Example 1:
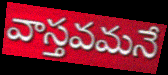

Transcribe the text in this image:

వాస్తవమనే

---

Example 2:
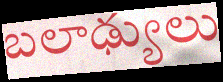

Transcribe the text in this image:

బలాఢ్యులు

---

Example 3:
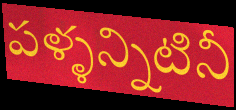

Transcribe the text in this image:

పళ్ళన్నిటినీ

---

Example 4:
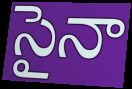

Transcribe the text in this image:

సైనా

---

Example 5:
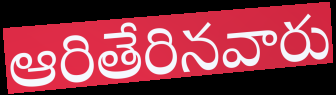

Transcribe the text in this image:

ఆరితేరినవారు